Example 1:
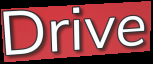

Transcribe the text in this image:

Drive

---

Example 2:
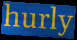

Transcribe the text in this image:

hurly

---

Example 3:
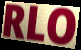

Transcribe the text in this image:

RLO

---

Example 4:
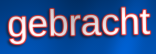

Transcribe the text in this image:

gebracht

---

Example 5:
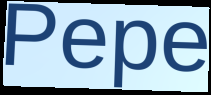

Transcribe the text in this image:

Pepe